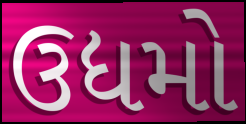
ઉદ્યમો